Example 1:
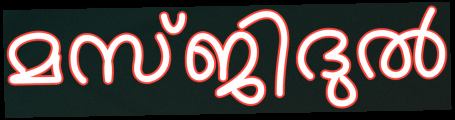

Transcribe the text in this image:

മസ്ജിദുൽ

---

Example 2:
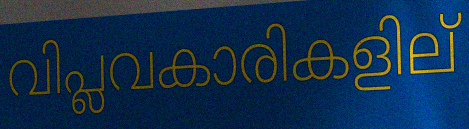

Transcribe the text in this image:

വിപ്ലവകാരികളില്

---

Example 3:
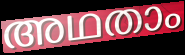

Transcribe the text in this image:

അഥതാം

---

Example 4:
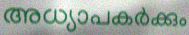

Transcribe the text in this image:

അധ്യാപകർക്കും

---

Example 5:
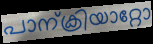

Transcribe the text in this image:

പാന്ക്രിയാറ്റോ